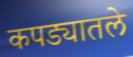
कपड्यातले